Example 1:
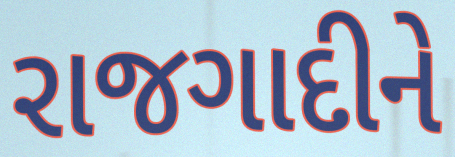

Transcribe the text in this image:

રાજગાદીને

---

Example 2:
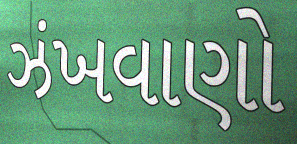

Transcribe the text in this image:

ઝંખવાણો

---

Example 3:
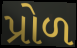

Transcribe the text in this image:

પ્રોળ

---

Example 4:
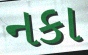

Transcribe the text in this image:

નકા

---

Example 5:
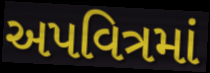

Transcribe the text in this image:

અપવિત્રમાં